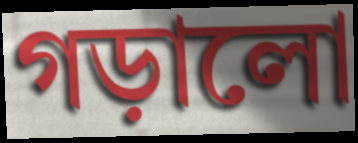
গড়ালো